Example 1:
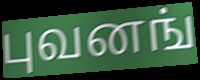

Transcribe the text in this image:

புவனங்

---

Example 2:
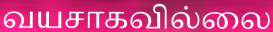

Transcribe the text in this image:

வயசாகவில்லை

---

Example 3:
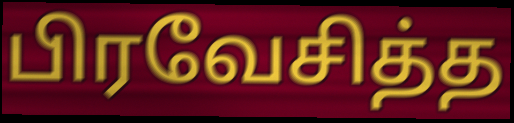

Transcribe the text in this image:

பிரவேசித்த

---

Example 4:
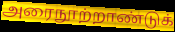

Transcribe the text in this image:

அரைநூற்றாண்டுக்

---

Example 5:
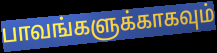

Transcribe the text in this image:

பாவங்களுக்காகவும்